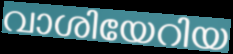
വാശിയേറിയ